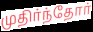
முதிர்ந்தோர்